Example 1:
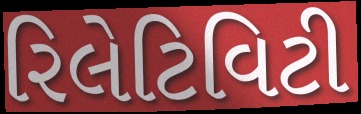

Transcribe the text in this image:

રિલેટિવિટી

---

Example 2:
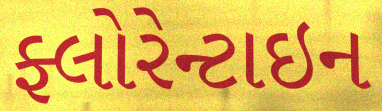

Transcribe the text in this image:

ફ્લોરેન્ટાઇન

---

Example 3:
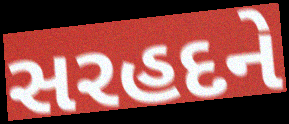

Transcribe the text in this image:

સરહદને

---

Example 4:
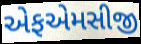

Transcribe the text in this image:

એફએમસીજી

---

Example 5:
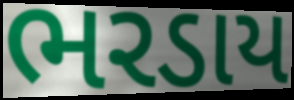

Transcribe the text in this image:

ભરડાય